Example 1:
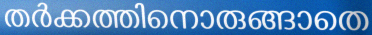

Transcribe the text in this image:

തർക്കത്തിനൊരുങ്ങാതെ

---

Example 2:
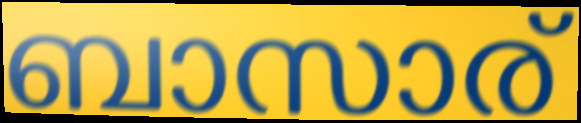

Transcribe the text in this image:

ബാസാര്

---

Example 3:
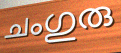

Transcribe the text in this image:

ചംഗുരു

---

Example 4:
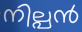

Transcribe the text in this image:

നില്പൻ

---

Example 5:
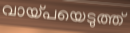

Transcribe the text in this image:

വായ്പയെടുത്ത്